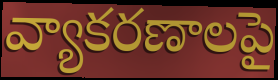
వ్యాకరణాలపై